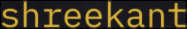
shreekant